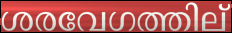
ശരവേഗത്തില്